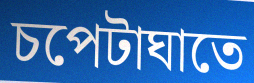
চপেটাঘাতে